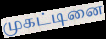
முகட்டினை